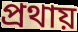
প্রথায়